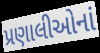
પ્રણાલીઓનાં